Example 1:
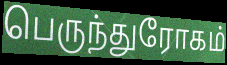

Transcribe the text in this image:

பெருந்துரோகம்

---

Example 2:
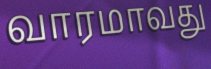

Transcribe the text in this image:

வாரமாவது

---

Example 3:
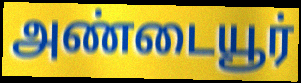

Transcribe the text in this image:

அண்டையூர்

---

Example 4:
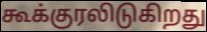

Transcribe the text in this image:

கூக்குரலிடுகிறது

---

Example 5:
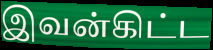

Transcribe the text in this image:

இவன்கிட்ட